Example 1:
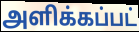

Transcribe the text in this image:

அளிக்கப்பட்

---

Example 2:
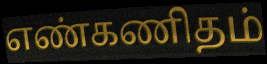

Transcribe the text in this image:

எண்கணிதம்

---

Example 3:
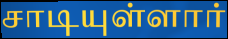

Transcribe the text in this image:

சாடியுள்ளார்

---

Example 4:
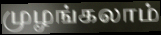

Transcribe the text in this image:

முழங்கலாம்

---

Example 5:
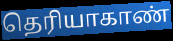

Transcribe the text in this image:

தெரியாகாண்